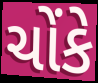
ચોંકે